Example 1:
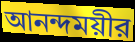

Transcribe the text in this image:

আনন্দময়ীর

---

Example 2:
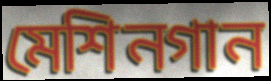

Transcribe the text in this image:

মেশিনগান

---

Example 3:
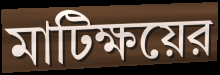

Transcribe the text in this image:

মাটিক্ষয়ের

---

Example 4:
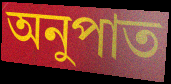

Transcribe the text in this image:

অনুপাত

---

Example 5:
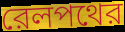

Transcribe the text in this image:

রেলপথের